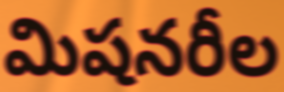
మిషనరీల